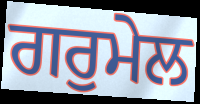
ਗਰੁਮੇਲ